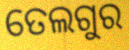
ତେଲଗୁର